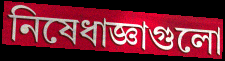
নিষেধাজ্ঞাগুলো